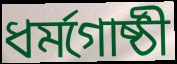
ধৰ্মগোষ্ঠী